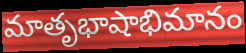
మాతృభాషాభిమానం